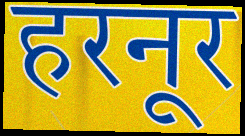
हरनूर